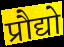
प्रौद्यो